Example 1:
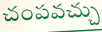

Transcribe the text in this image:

చంపవచ్చు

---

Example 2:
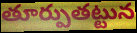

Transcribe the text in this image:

తూర్పుతట్టున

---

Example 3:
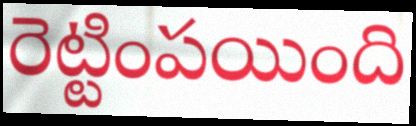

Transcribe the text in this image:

రెట్టింపయింది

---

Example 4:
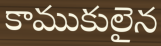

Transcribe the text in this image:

కాముకులైన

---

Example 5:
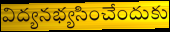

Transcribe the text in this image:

విద్యనభ్యసించేందుకు